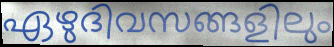
ഏഴുദിവസങ്ങളിലും